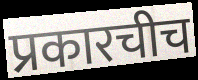
प्रकारचीच